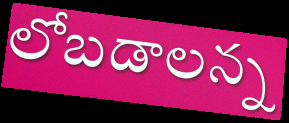
లోబడాలన్న